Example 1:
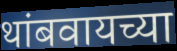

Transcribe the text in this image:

थांबवायच्या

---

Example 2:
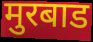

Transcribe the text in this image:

मुरबाड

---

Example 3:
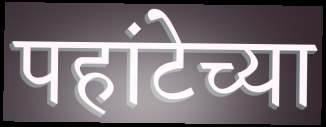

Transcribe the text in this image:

पहांटेच्या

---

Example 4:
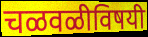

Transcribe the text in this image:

चळवळीविषयी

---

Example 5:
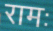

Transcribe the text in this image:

रामः